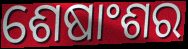
ଶେଷାଂଶର